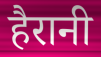
हैरानी